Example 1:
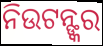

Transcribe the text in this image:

ନିଉଟନ୍ଙ୍କର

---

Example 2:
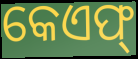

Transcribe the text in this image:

କେଏଫ୍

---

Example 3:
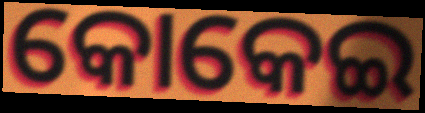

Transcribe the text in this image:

କୋକେଇ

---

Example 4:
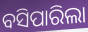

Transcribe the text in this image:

ବସିପାରିଲା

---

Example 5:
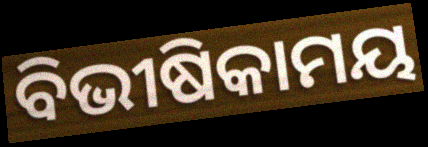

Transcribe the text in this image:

ବିଭୀଷିକାମୟ